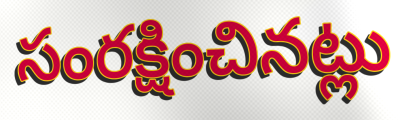
సంరక్షించినట్లు